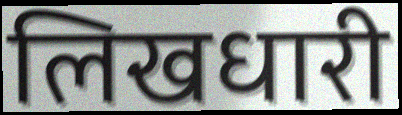
लिखधारी